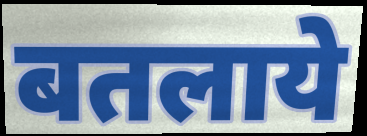
बतलाये